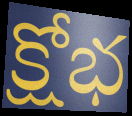
క్షోభ